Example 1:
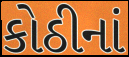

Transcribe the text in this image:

કોઠીનાં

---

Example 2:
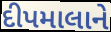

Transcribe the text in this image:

દીપમાલાને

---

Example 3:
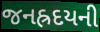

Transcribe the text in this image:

જનહ્રદયની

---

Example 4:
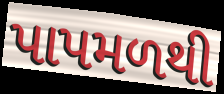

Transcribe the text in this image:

પાપમળથી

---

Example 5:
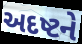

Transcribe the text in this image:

અદષ્ટને